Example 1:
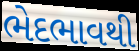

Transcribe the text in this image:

ભેદભાવથી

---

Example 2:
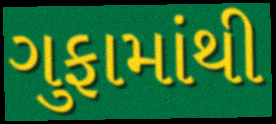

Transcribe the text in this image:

ગુફામાંથી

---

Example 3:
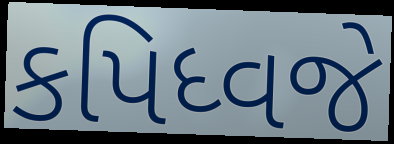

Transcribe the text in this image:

કપિધ્વજે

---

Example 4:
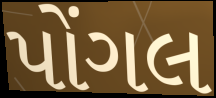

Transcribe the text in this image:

પોંગલ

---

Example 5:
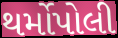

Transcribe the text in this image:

થર્મોપોલી